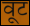
वूट